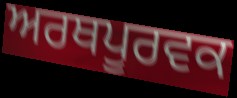
ਅਰਥਪੂਰਵਕ